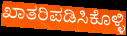
ಖಾತರಿಪಡಿಸಿಕೊಳ್ಳಿ